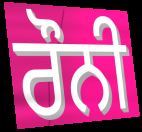
ਰੌਨੀ